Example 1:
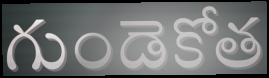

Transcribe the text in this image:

గుండెకోత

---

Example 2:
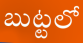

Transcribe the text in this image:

బుట్టలో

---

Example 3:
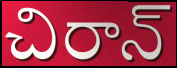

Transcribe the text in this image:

చిరాన్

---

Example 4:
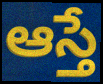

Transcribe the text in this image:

ఆస్తే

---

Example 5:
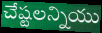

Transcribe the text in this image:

చేష్టలన్నియు